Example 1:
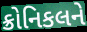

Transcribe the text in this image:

ક્રોનિકલને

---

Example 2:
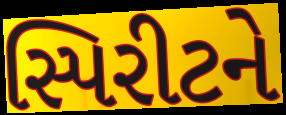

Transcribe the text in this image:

સ્પિરીટને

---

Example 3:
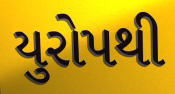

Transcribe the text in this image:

યુરોપથી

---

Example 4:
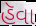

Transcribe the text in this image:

હૅવા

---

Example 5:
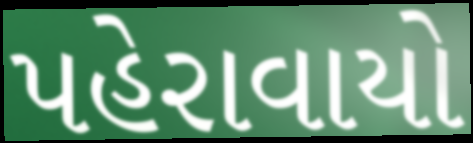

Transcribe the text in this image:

પહેરાવાયો